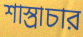
শাস্ত্রাচার